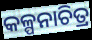
କଳ୍ପନାଚିତ୍ର